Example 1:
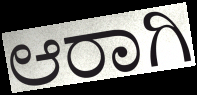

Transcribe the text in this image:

ಆರಾಗಿ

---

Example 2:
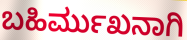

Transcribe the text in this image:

ಬಹಿರ್ಮುಖನಾಗಿ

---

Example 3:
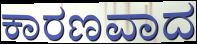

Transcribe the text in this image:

ಕಾರಣವಾದ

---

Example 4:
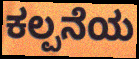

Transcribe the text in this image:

ಕಲ್ಪನೆಯ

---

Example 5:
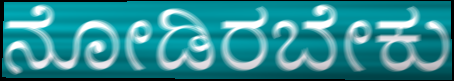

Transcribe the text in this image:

ನೋಡಿರಬೇಕು